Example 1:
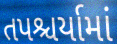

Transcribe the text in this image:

તપશ્ચર્યામાં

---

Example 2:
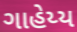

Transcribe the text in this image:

ગાહેય્ય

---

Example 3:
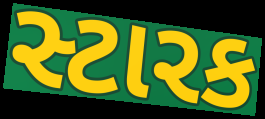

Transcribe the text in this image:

સ્ટારક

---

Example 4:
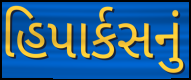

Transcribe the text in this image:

હિપાર્કસનું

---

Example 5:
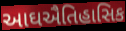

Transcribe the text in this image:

આઘઐતિહાસિક